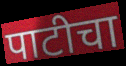
पाटीचा